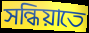
সন্ধিয়াতে